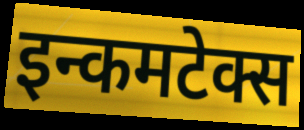
इन्कमटेक्स